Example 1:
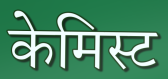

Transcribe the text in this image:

केमिस्ट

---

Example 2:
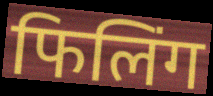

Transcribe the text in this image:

फिलिंग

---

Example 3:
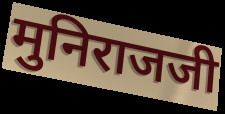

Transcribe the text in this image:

मुनिराजजी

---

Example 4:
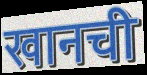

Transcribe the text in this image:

खानची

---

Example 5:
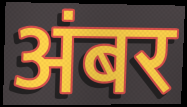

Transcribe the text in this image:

अंबर